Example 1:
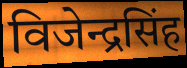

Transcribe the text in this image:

विजेन्द्रसिंह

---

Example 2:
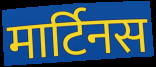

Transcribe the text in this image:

मार्टिनस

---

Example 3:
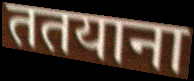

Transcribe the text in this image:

ततयाना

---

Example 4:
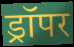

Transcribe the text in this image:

ड्रॉपर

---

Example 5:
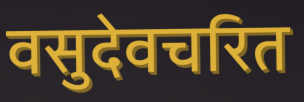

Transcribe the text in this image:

वसुदेवचरित